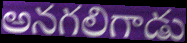
అనగలిగాడు